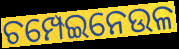
ଚମ୍ପେଇନେଉଳ